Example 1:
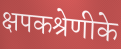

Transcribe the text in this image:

क्षपकश्रेणीके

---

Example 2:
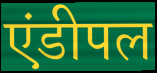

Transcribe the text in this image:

एंडीपल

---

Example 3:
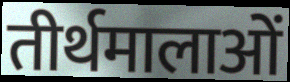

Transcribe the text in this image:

तीर्थमालाओं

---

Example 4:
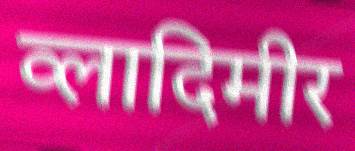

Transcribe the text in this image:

व्‍लादिमीर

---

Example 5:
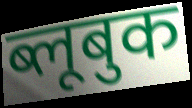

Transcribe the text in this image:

ब्लूबुक